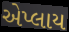
એપ્લાય